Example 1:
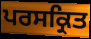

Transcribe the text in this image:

ਪਰਸਕ੍ਰਿਤ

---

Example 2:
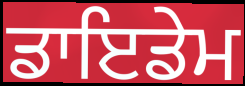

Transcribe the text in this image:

ਡਾਇਡੇਮ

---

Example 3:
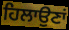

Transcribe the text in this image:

ਹਿਲਾਉਣਾਂ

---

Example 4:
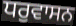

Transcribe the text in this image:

ਧਰੁਵਾਸਨ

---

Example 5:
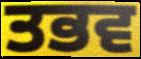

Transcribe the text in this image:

ਤਭਵ